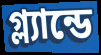
গ্ল্যান্ডে